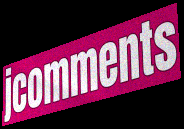
jcomments